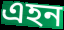
এহন